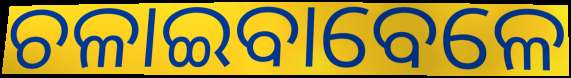
ଚଳାଇବାବେଳେ